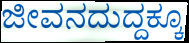
ಜೀವನದುದ್ದಕ್ಕೂ